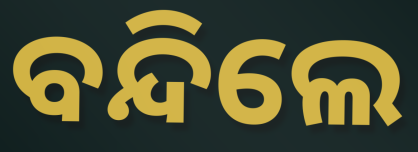
ବନ୍ଦିଲେ